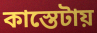
কাস্তেটায়